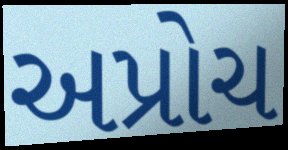
અપ્રોચ